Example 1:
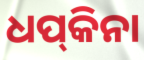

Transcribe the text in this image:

ଧପ୍‍କିନା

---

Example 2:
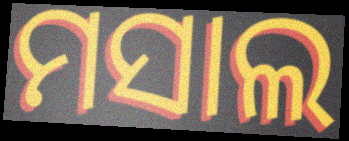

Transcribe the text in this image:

ମସାଲ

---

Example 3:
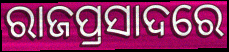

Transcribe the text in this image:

ରାଜପ୍ରସାଦରେ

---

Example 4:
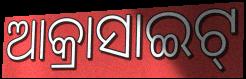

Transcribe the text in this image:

ଆକ୍ରାସାଇଟ୍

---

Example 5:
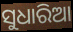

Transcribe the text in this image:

ସୁଧାରିଆ